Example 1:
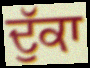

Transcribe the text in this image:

ਦੁੱਕਾ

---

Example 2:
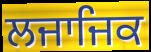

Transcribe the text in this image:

ਲਜਾਜਿਕ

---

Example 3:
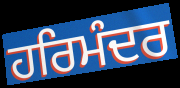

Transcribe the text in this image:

ਹਰਿਮੰਦਰ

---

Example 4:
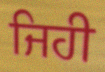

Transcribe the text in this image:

ਜਿਹੀ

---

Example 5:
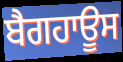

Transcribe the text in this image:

ਬੈਗਹਾਊਸ